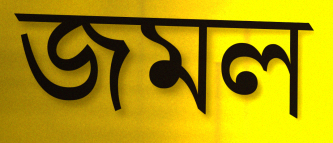
জমল